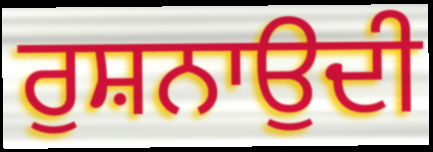
ਰੁਸ਼ਨਾਉਦੀ